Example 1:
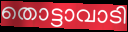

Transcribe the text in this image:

തൊട്ടാവാടി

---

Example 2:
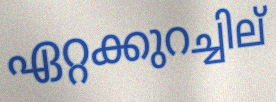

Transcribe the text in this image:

ഏറ്റക്കുറച്ചില്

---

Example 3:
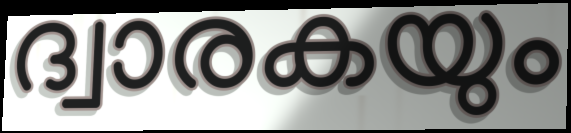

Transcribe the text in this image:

ദ്വാരകയും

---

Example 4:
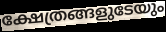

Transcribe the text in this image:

ക്ഷേത്രങ്ങളുടേയും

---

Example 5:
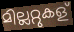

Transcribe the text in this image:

മില്ലറ്റുകള്